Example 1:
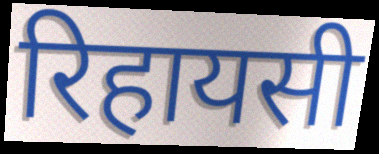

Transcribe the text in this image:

रिहायसी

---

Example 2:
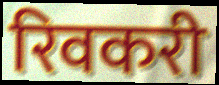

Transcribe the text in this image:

रिवकरी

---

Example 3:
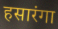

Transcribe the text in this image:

हसारंगा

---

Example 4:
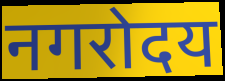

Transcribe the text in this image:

नगरोदय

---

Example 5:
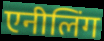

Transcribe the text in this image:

एनीलिंग